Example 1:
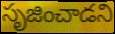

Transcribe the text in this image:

సృజించాడని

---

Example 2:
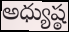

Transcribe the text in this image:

అధ్యుష్ఠ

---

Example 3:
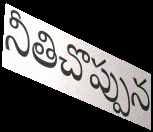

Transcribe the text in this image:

నీతిచొప్పున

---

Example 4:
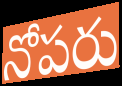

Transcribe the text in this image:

నోపరు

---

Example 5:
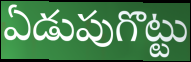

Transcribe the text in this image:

ఏడుపుగొట్టు